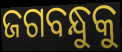
ଜଗବନ୍ଧୁକୁ